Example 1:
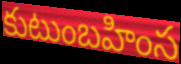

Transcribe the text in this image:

కుటుంబహింస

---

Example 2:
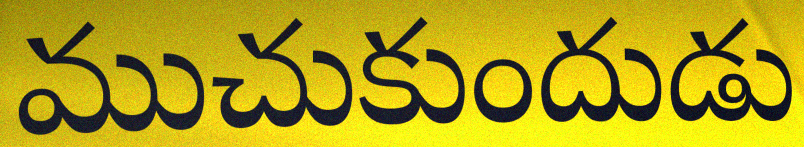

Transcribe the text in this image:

ముచుకుందుడు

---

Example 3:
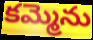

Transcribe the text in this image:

కమ్మెను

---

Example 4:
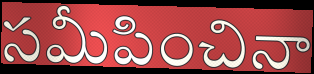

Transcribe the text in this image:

సమీపించినా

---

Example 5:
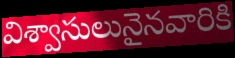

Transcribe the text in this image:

విశ్వాసులునైనవారికి